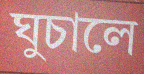
ঘুচালে